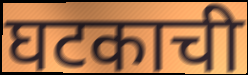
घटकाची